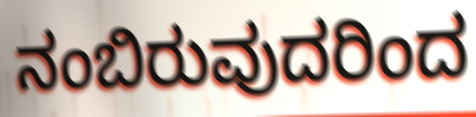
ನಂಬಿರುವುದರಿಂದ